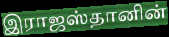
இராஜஸ்தானின்